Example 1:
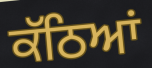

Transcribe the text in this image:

ਕੱਠਿਆਂ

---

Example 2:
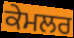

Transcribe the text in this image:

ਕੇਮਲਰ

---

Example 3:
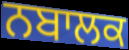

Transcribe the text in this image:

ਨਬਾਲਕ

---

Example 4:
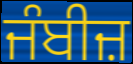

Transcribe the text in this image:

ਜੰਬੀਜ਼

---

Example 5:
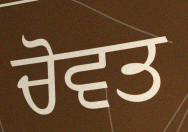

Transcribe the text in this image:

ਚੋਵਤ